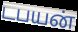
டபயன்